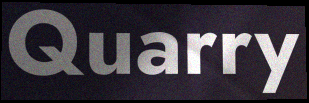
Quarry